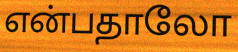
என்பதாலோ